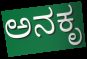
ಅನಕೃ